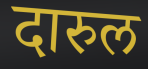
दारुल